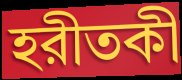
হরীতকী